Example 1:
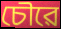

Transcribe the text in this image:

চৌৱে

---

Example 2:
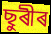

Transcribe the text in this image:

ছুৰীৰ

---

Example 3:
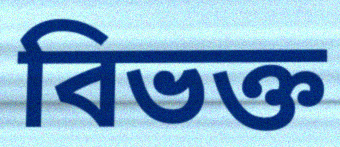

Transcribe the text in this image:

বিভক্ত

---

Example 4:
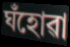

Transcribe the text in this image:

ঘঁহোৱা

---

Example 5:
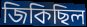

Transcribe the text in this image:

জিকিছিল